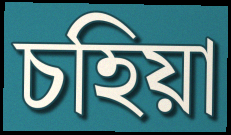
চহিয়া